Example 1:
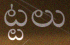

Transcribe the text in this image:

ట్టలు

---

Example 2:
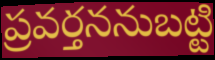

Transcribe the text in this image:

ప్రవర్తననుబట్టి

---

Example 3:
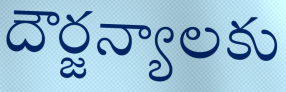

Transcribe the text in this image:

దౌర్జన్యాలకు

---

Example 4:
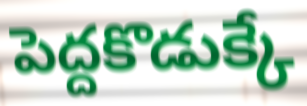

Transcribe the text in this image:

పెద్దకొడుక్కే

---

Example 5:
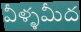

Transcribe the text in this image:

వీళ్ళమీద